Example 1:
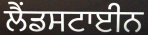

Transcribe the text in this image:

ਲੈਂਡਸਟਾਈਨ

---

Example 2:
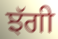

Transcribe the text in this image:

ਝੱਗੀ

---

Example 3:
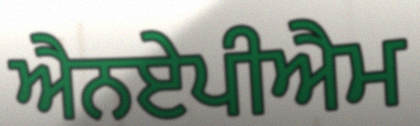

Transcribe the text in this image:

ਐਨਏਪੀਐਮ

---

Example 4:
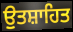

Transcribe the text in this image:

ਉੁਤਸ਼ਾਹਿਤ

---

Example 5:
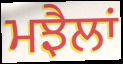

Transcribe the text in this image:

ਮਝੈਲਾਂ